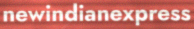
newindianexpress